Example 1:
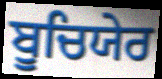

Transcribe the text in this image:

ਬੂਚਿਯੇਰ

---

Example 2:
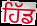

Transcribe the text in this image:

ਹਿੱਡ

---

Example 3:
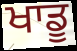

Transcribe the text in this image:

ਖਾਡੂ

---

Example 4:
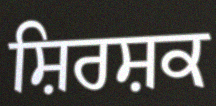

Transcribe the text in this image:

ਸ਼ਿਰਸ਼ਕ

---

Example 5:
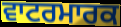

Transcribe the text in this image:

ਵਾਟਰਮਾਰਕ